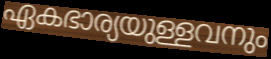
ഏകഭാര്യയുള്ളവനും